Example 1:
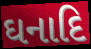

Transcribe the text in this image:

ઘનાદિ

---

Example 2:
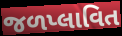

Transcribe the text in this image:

જળપ્લાવિત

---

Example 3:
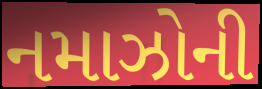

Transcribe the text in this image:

નમાઝોની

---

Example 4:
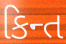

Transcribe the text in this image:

કિન્ત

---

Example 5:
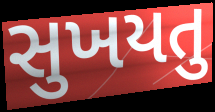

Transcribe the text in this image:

સુખયતુ